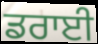
ਡਰਾਈ